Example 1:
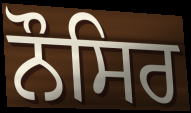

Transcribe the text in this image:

ਨੌਸਿਰ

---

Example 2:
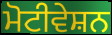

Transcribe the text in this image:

ਮੋਟੀਵੇਸ਼ਨ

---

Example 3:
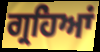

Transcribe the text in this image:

ਗ੍ਰਹਿਆਂ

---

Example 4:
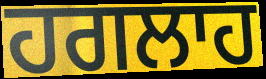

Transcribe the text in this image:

ਹਗਲਾਹ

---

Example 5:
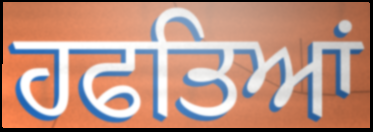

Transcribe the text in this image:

ਹਫਤਿਆਂ